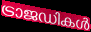
ട്രാജഡികൾ